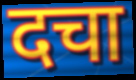
दचा